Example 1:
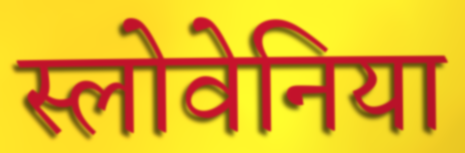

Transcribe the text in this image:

स्लोवेनिया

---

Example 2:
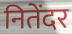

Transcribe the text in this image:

नितेंदर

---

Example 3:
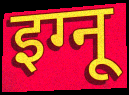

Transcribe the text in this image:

इग्नू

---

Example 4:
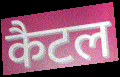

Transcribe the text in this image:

कैटल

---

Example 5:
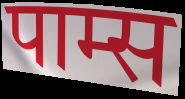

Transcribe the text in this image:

पाम्स